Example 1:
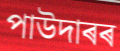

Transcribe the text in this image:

পাউদাৰৰ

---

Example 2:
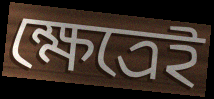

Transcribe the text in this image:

ক্ষেত্ৰেই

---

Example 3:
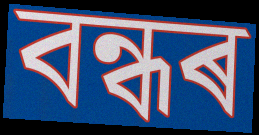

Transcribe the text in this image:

বন্ধৰ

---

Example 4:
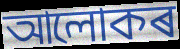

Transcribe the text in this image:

আলোকৰ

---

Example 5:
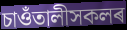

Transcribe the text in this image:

চাওঁতালীসকলৰ